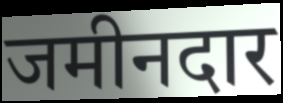
जमीनदार